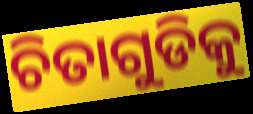
ଚିତାଗୁଡିକୁ